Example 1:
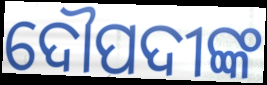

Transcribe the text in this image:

ଦୌପଦୀଙ୍କ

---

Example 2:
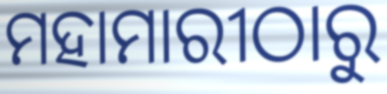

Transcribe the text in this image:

ମହାମାରୀଠାରୁ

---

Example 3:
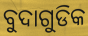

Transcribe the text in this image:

ବୁଦାଗୁଡିକ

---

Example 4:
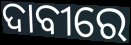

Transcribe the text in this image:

ଦାବୀରେ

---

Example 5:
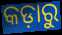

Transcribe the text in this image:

କଡ଼ାରୁ